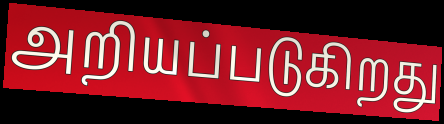
அறியப்படுகிறது